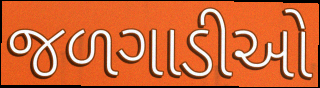
જળગાડીઓ